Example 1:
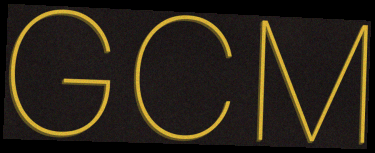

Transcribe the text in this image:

GCM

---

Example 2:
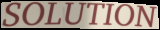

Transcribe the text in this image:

SOLUTION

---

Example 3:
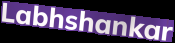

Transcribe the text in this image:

Labhshankar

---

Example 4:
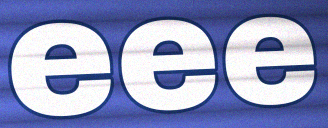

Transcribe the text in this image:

eee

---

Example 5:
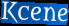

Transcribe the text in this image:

Kcene